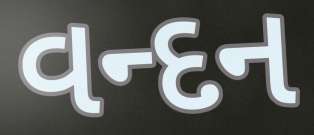
વન્દન